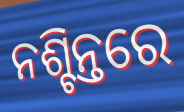
ନଶ୍ଚିନ୍ତରେ